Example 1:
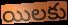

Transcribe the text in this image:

యిలకు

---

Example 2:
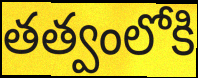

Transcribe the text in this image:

తత్వంలోకి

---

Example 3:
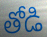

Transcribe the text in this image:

తోడి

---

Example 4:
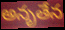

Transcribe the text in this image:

అనృతేన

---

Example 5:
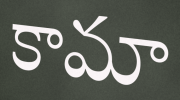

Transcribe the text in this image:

కామా